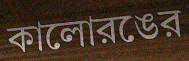
কালোরঙের